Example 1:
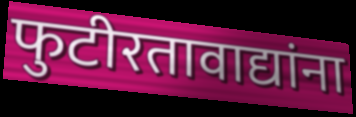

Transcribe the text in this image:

फुटीरतावाद्यांना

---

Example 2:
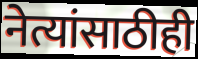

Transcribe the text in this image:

नेत्यांसाठीही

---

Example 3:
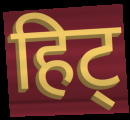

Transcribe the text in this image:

हिट्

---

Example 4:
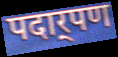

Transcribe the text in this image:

पदार्पण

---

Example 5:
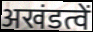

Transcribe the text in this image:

अखंडत्वें